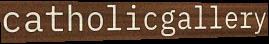
catholicgallery